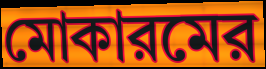
মোকারমের